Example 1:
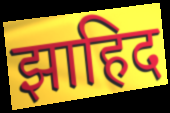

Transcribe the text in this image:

झाहिद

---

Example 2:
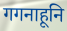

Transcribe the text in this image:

गगनाहूनि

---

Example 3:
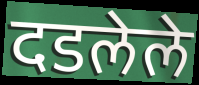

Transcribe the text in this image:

दडलेले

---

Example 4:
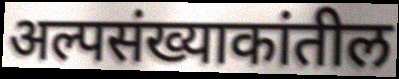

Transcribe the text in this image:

अल्पसंख्याकांतील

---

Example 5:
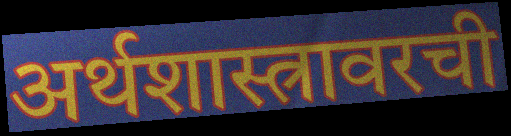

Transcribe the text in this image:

अर्थशास्त्रावरची